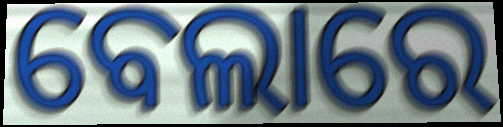
ବେଲାରେ